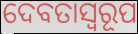
ଦେବତାସ୍ୱରୂପ